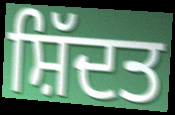
ਸ਼ਿੱਦਤ